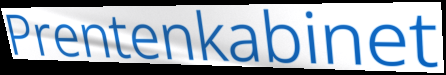
Prentenkabinet